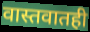
वास्तवातही